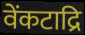
वेंकटाद्रि